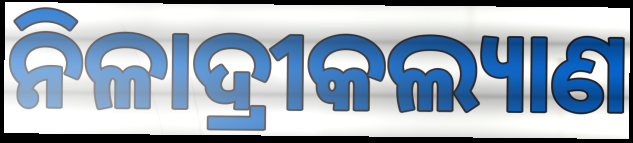
ନିଳାଦ୍ରୀକଲ୍ୟାଣ